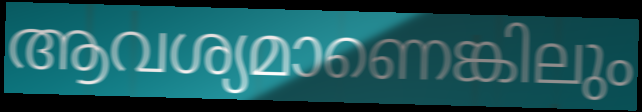
ആവശ്യമാണെങ്കിലും